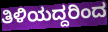
ತಿಳಿಯದ್ದರಿಂದ